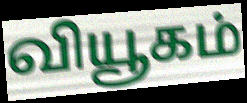
வியூகம்